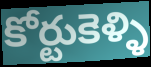
కోర్టుకెళ్ళి